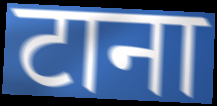
टाना